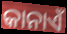
କାନାଏଁ